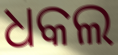
ଧକଲ